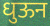
धुऊन